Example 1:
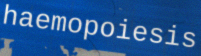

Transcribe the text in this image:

haemopoiesis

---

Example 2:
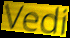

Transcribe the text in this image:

Vedi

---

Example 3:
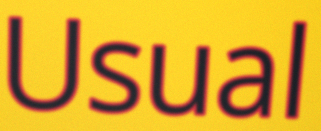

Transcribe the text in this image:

Usual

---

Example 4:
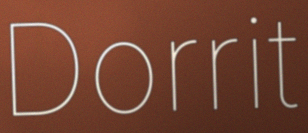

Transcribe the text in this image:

Dorrit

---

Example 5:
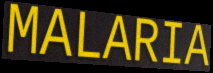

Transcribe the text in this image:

MALARIA